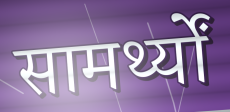
सामर्थ्यों